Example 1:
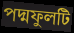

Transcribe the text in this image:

পদ্মফুলটি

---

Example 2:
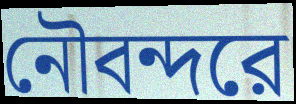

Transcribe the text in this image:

নৌবন্দরে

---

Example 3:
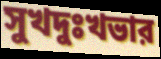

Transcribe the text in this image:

সুখদুঃখভার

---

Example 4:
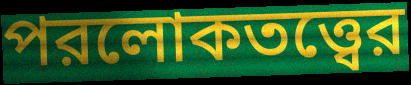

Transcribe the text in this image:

পরলোকতত্ত্বের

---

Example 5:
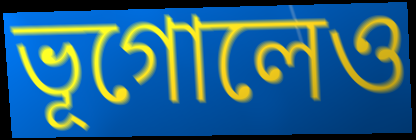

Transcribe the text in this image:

ভূগোলেও